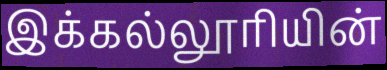
இக்கல்லூரியின்